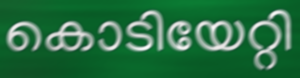
കൊടിയേറ്റി